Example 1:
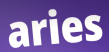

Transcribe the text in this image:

aries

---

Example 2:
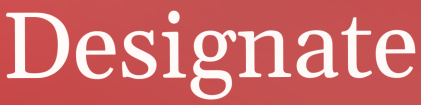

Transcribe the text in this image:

Designate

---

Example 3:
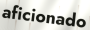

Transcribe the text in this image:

aficionado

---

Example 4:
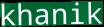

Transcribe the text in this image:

khanik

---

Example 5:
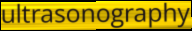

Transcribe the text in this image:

ultrasonography